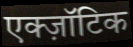
एक्ज़ॉटिक